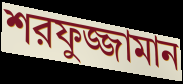
শরফুজ্জামান